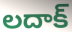
లదాక్